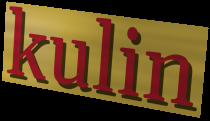
kulin